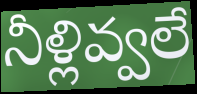
నీళ్లివ్వలే